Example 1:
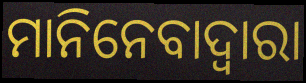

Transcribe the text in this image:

ମାନିନେବାଦ୍ୱାରା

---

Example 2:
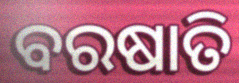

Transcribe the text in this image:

ବରଷାତି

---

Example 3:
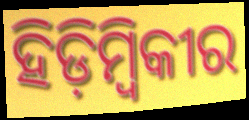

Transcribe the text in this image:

ହିଡ଼ିମ୍ବିକୀର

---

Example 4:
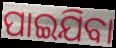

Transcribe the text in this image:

ପାଇଯିବା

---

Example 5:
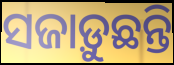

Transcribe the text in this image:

ସଜାଡ଼ୁଛନ୍ତି